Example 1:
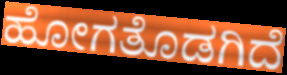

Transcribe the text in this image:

ಹೋಗತೊಡಗಿದೆ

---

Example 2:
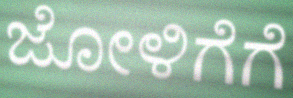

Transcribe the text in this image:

ಜೋಳಿಗೆಗೆ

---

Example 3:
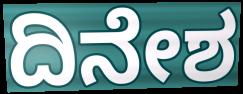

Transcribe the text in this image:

ದಿನೇಶ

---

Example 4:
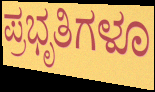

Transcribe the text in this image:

ಪ್ರಭೃತಿಗಳೂ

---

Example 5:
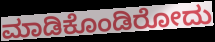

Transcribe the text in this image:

ಮಾಡಿಕೊಂಡಿರೋದು